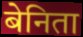
बेनिता